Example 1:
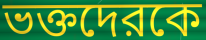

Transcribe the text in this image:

ভক্তদেরকে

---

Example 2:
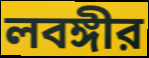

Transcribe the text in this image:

লবঙ্গীর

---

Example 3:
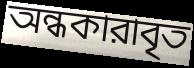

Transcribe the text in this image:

অন্ধকারাবৃত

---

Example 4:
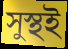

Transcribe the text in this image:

সুস্থই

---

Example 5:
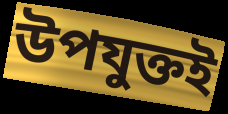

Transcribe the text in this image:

উপযুক্তই